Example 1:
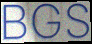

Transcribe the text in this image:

BGS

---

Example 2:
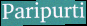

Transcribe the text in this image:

Paripurti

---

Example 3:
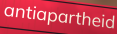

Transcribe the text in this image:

antiapartheid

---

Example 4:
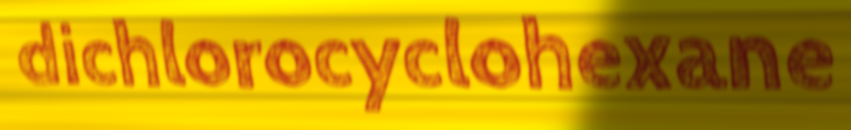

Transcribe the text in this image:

dichlorocyclohexane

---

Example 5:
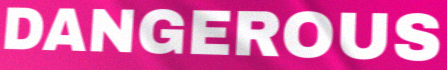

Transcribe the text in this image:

DANGEROUS